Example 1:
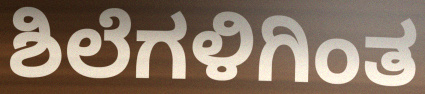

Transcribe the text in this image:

ಶಿಲೆಗಳಿಗಿಂತ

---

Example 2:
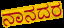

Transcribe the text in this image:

ನಾನದರ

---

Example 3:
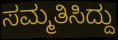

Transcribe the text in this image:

ಸಮ್ಮತಿಸಿದ್ದು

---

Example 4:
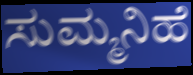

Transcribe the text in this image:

ಸುಮ್ಮನಿಹೆ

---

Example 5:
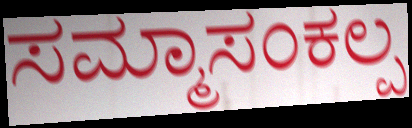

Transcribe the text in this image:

ಸಮ್ಮಾಸಂಕಲ್ಪ